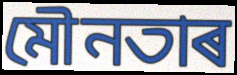
মৌনতাৰ